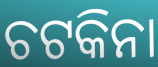
ଚଟକିନା